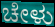
ಚೇಳು